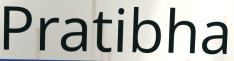
Pratibha